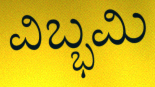
ವಿಬ್ಭಮಿ